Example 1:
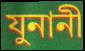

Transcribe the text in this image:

যুনানী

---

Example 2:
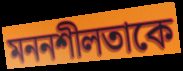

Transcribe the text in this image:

মননশীলতাকে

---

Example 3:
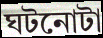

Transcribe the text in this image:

ঘটনোটা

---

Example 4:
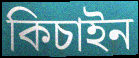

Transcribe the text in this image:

কিচাইন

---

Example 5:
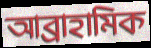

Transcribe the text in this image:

আব্রাহামিক